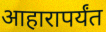
आहारापर्यंत